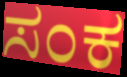
ಸಂಕ